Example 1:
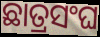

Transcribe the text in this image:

ଛାତ୍ରସଂଘ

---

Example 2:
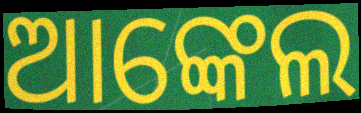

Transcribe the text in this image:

ଆଙ୍କେଲ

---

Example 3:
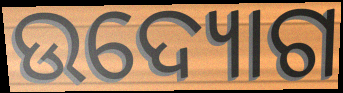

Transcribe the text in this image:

ଉଦ୍ୟୋଗ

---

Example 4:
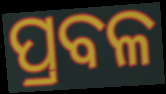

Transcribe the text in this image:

ପ୍ରବଳ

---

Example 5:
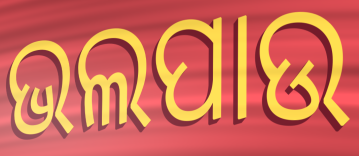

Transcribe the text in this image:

ଭଲପାଉ